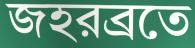
জহরব্রতে